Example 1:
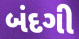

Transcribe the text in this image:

બંદગી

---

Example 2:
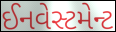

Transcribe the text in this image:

ઈનવેસ્ટમેન્ટ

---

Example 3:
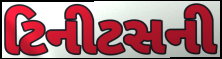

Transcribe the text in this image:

ટિનીટસની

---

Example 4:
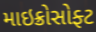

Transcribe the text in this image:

માઇક્રોસોફ્ટ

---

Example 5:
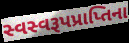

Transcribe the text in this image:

સ્વસ્વરૂપપ્રાપ્તિના